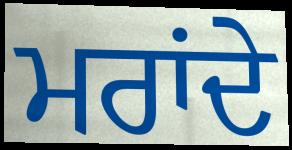
ਮਰਾਂਦੇ